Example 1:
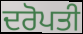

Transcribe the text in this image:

ਦਰੋਪਤੀ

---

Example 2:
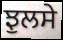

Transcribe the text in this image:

ਝੁਲਸੇ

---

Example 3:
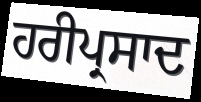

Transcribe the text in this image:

ਹਰੀਪ੍ਰਸਾਦ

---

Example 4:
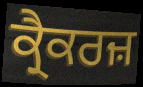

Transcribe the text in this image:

ਕ੍ਰੈਕਰਜ਼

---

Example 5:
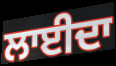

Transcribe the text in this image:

ਲਾਈਦਾ